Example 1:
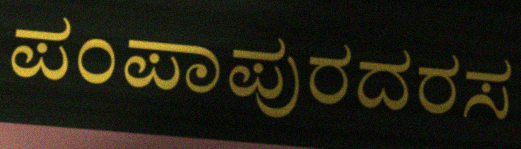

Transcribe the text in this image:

ಪಂಪಾಪುರದರಸ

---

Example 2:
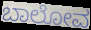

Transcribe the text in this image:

ಬಾಲೋವ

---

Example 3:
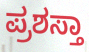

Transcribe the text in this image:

ಪ್ರಶಸ್ತಾ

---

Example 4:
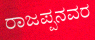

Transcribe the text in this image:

ರಾಜಪ್ಪನವರ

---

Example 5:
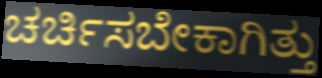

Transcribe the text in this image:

ಚರ್ಚಿಸಬೇಕಾಗಿತ್ತು